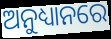
ଅନୁଧ୍ୟାନରେ